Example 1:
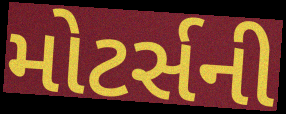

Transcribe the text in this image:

મોટર્સની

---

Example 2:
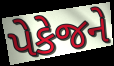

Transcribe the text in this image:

પેકેજને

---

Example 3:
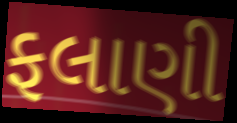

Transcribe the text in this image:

ફલાણી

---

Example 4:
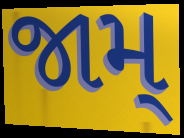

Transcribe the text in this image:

જામ્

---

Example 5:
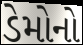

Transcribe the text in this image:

ડેમોનો